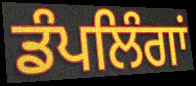
ਡੰਪਲਿੰਗਾਂ